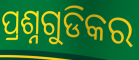
ପ୍ରଶ୍ନଗୁଡିକର